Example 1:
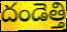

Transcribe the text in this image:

దండెత్తి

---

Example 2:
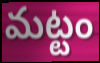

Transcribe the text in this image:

మట్టం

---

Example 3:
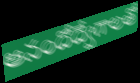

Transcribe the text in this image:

ఆనందోద్వేగాలతో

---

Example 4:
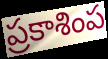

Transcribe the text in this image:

ప్రకాశింప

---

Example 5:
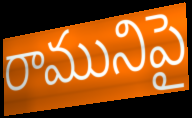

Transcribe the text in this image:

రామునిపై